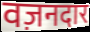
वज़नदार